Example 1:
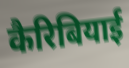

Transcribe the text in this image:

कैरिबियाई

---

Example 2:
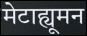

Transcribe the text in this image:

मेटाह्यूमन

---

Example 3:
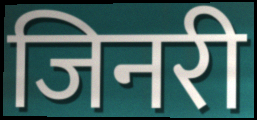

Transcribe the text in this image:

जिनरी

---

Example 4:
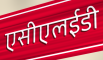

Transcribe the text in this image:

एसीएलईडी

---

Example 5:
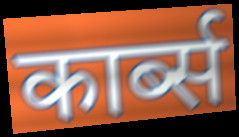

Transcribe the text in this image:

कार्ब्स